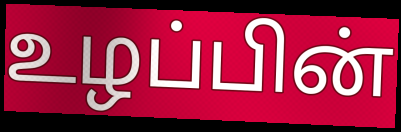
உழப்பின்